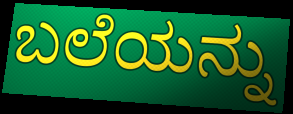
ಬಲೆಯನ್ನು